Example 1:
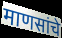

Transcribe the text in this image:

माणसांचे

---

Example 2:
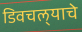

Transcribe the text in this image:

डिवचल्याचे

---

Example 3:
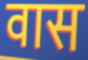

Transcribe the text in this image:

वास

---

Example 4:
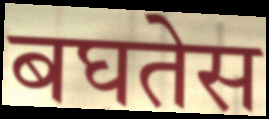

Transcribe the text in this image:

बघतेस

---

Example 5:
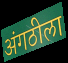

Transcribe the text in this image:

अंगठीला